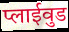
प्‍लाईवुड